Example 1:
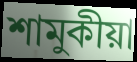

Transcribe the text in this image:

শামুকীয়া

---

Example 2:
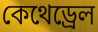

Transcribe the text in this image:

কেথেড্ৰেল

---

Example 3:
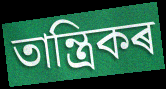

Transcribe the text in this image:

তান্ত্ৰিকৰ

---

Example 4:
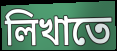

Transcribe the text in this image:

লিখাতে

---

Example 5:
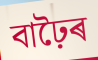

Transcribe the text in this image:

বাঢ়ৈৰ